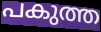
പകുത്ത